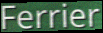
Ferrier